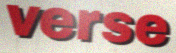
verse